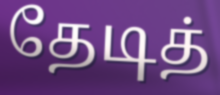
தேடித்